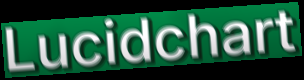
Lucidchart